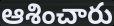
ఆశించారు